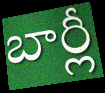
బార్లీ